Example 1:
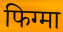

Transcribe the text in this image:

फिग्मा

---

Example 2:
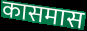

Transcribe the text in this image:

कासमास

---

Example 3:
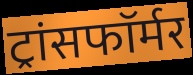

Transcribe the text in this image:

ट्रांसफॉर्मर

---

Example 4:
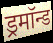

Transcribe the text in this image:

ड्रमॉन्ड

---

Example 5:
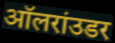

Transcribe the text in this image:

ऑलरांउडर